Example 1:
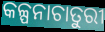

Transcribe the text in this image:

କଳ୍ପନାଚାତୁରୀ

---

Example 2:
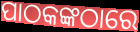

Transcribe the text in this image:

ପାଠକଙ୍କଠାରେ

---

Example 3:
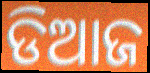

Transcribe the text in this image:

ଡିଆଜ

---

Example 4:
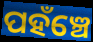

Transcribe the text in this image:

ପହଁଞ୍ଚେ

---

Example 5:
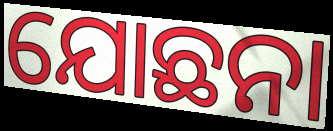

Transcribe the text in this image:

ଯୋଛନା